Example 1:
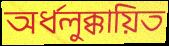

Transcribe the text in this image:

অর্ধলুক্কায়িত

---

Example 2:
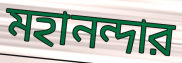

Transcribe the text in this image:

মহানন্দার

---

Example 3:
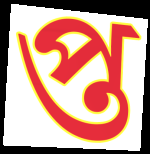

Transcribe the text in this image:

প্ত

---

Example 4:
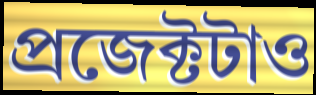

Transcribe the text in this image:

প্রজেক্টটাও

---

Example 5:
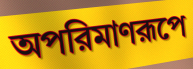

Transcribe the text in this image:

অপরিমাণরূপে